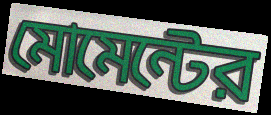
মোমেন্টের